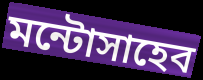
মন্টোসাহেব